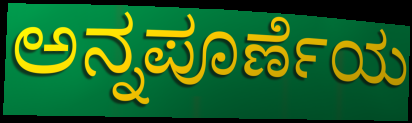
ಅನ್ನಪೂರ್ಣೆಯ